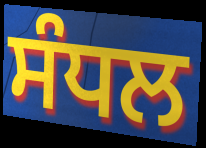
ਸੰਧਲ